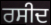
ਰਸੀਦ